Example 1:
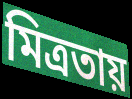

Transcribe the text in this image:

মিত্রতায়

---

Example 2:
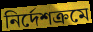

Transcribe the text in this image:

নির্দেশক্রমে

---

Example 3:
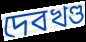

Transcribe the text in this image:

দেবখণ্ড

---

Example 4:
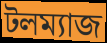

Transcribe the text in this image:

টলম্যাজ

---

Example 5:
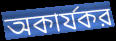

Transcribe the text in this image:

অকার্যকর